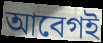
আবেগই